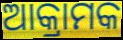
ଆକ୍ରାମକ